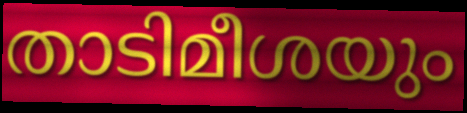
താടിമീശയും